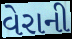
વેરાની